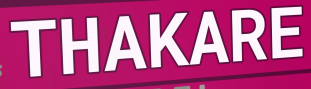
THAKARE